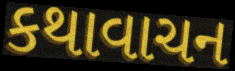
કથાવાચન